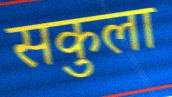
सकुला